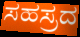
ಸಹಸ್ರದ